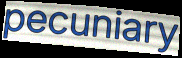
pecuniary